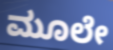
ಮೂಲೇ